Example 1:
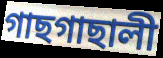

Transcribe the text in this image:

গাছগাছালী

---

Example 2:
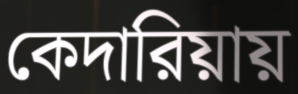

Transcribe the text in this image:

কেদারিয়ায়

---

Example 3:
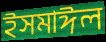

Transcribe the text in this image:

ইসমাঈল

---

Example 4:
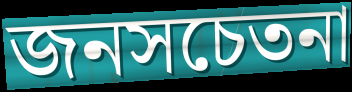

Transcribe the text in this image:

জনসচেতনা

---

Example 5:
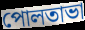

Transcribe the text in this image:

পোলতাভা